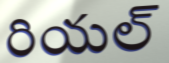
రియల్